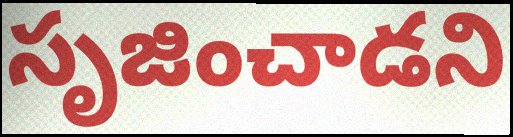
సృజించాడని